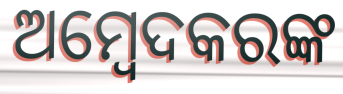
ଅମ୍ବେଦକରଙ୍କ